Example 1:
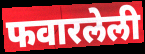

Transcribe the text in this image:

फवारलेली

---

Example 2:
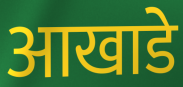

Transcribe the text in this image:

आखाडे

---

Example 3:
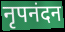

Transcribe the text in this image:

नृपनंदन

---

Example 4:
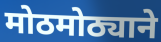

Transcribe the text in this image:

मोठमोठ्याने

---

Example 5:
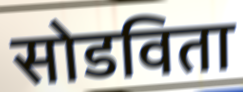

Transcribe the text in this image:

सोडविता